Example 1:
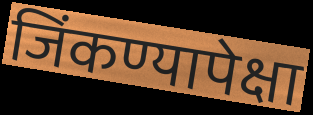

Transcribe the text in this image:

जिंकण्यापेक्षा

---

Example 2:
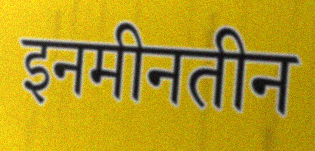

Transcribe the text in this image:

इनमीनतीन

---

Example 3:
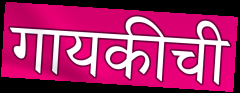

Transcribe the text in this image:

गायकीची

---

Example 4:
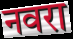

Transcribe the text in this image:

नवरा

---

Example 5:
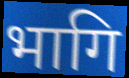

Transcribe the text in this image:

भागि